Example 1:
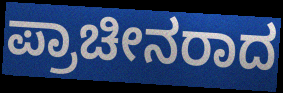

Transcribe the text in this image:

ಪ್ರಾಚೀನರಾದ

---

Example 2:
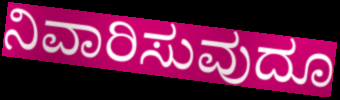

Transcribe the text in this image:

ನಿವಾರಿಸುವುದೂ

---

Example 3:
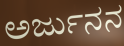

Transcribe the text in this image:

ಅರ್ಜುನನ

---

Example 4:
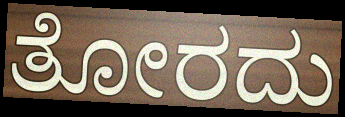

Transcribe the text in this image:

ತೋರದು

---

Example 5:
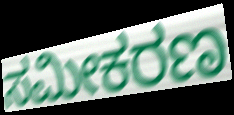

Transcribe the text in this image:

ಸಮೀಕರಣ